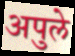
अपुले